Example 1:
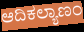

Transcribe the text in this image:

ಆದಿಕಲ್ಯಾಣಂ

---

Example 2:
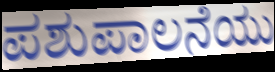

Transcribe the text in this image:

ಪಶುಪಾಲನೆಯು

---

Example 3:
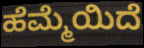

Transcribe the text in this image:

ಹೆಮ್ಮೆಯಿದೆ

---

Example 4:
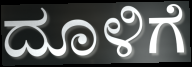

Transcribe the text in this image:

ದೂಳಿಗೆ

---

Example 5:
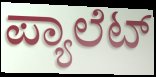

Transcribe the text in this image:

ಪ್ಯಾಲೆಟ್